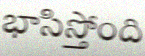
భాసిస్తోంది